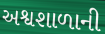
અશ્વશાળાની